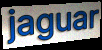
jaguar